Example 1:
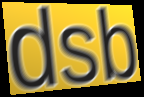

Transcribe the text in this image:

dsb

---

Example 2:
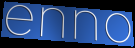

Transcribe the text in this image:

enno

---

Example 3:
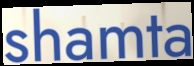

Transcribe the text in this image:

shamta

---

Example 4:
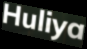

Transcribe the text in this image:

Huliya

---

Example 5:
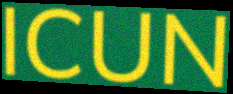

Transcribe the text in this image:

ICUN